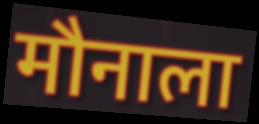
मौनाला